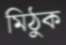
মিঠুক